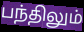
பந்திலும்